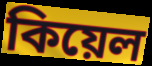
কিয়েল